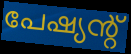
പേഷ്യന്റ്